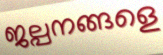
ജല്പനങ്ങളെ